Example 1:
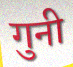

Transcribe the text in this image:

गुनी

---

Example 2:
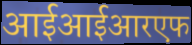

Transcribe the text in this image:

आईआईआरएफ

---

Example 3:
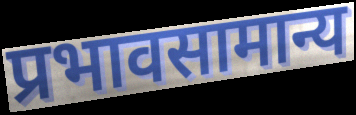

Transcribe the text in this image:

प्रभावसामान्य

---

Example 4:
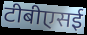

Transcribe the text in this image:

टीबीएसई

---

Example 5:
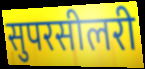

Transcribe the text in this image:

सुपरसीलरी